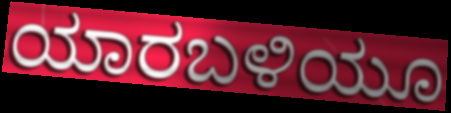
ಯಾರಬಳಿಯೂ